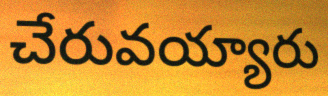
చేరువయ్యారు